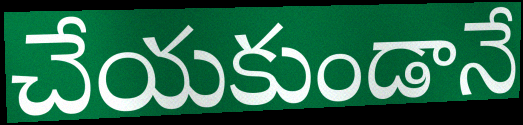
చేయకుండానే